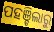
ପହଞ୍ଚିଲାରୁ